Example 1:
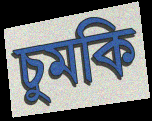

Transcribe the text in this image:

চুমকি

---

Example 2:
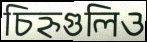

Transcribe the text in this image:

চিহ্নগুলিও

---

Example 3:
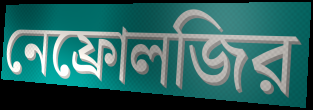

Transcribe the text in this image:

নেফ্রোলজির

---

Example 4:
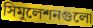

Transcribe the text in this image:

সিমুলেশনগুলো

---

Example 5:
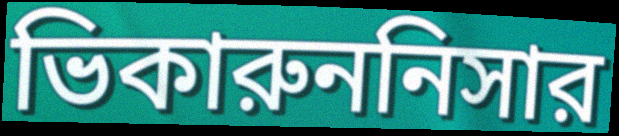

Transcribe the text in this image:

ভিকারুননিসার